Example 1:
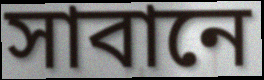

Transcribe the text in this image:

সাবানে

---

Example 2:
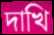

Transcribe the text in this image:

দাখি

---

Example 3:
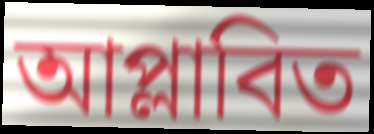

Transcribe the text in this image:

আপ্লাবিত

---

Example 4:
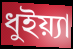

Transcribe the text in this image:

ধুইয়্যা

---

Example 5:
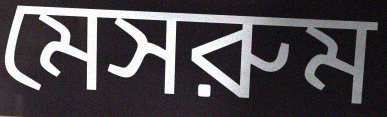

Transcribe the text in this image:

মেসরুম